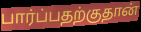
பார்ப்பதற்குதான்